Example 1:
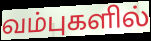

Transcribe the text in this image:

வம்புகளில்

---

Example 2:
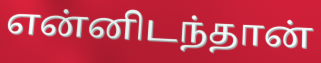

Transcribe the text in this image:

என்னிடந்தான்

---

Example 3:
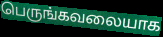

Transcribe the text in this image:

பெருங்கவலையாக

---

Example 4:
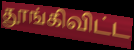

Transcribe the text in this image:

தூங்கிவிட்ட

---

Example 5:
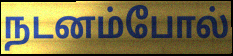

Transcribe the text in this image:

நடனம்போல்